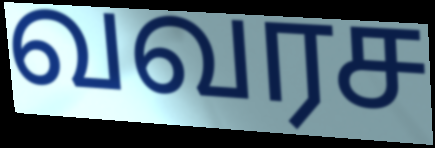
வவரச